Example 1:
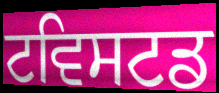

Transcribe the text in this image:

ਟਵਿਸਟਡ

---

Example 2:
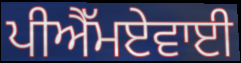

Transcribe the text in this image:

ਪੀਐੱਮਏਵਾਈ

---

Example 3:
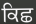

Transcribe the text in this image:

ਕਿਛ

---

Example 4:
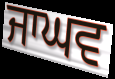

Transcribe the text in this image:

ਜਾਘਵ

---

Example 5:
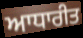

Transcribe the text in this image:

ਆਧਾਰੀਤ